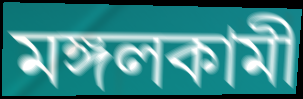
মঙ্গলকামী